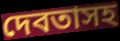
দেবতাসহ